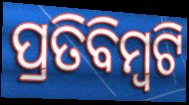
ପ୍ରତିବିମ୍ବଟି